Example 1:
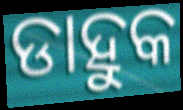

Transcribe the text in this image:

ଡାହୁକ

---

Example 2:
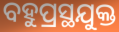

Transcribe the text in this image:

ବହୁପ୍ରସ୍ଥଯୁକ୍ତ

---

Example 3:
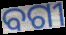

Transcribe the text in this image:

ବଗୀ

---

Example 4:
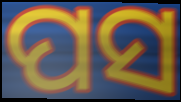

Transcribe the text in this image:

ପସ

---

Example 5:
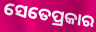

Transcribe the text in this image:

ସେତେପ୍ରକାର